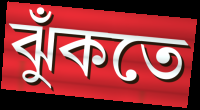
ঝুঁকতে